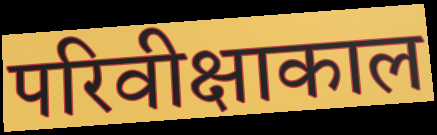
परिवीक्षाकाल